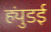
ह्युंडई